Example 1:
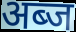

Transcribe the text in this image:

अब्ज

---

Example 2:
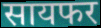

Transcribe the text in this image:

सायफर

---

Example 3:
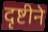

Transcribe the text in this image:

दृष्टीने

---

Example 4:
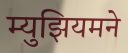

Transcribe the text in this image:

म्युझियमने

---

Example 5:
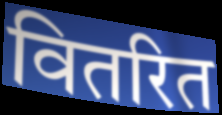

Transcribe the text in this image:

वितरित